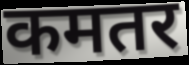
कमतर